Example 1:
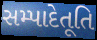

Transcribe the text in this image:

સમ્પાદેતૂતિ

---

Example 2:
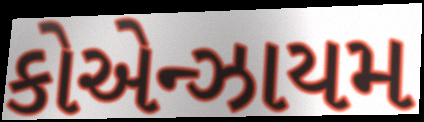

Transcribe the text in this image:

કોએન્ઝાયમ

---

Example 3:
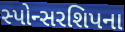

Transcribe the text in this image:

સ્પોન્સરશિપના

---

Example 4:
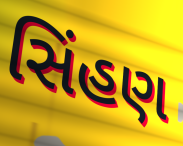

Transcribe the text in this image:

સિંહણ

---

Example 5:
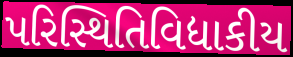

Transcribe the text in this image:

પરિસ્થિતિવિદ્યાકીય